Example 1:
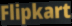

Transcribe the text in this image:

Flipkart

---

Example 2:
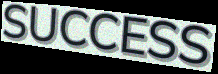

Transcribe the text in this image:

SUCCESS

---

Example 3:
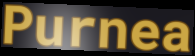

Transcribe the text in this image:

Purnea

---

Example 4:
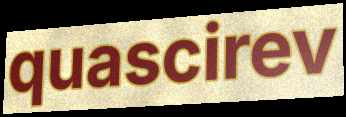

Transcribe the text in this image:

quascirev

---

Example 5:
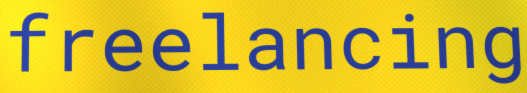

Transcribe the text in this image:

freelancing